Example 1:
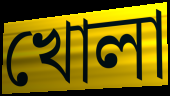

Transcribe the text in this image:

খোলা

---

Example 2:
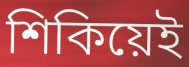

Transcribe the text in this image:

শিকিয়েই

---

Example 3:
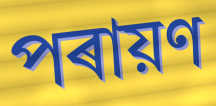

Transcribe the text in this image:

পৰায়ণ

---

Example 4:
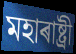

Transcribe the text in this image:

মহাৰাষ্ট্ৰী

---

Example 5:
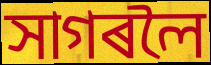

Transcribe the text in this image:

সাগৰলৈ